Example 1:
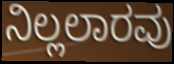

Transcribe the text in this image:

ನಿಲ್ಲಲಾರವು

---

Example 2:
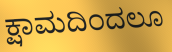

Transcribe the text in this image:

ಕ್ಷಾಮದಿಂದಲೂ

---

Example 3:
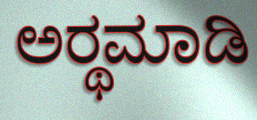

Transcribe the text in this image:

ಅರ್‍ಥಮಾಡಿ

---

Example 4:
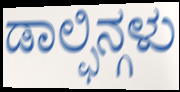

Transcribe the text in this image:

ಡಾಲ್ಫಿನ್ಗಳು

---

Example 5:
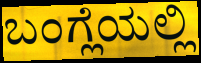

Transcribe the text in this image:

ಬಂಗ್ಲೆಯಲ್ಲಿ